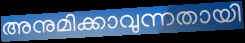
അനുമിക്കാവുന്നതായി